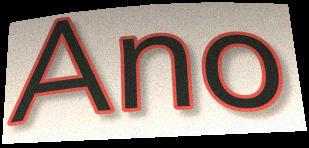
Ano